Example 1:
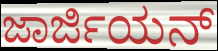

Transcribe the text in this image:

ಜಾರ್ಜಿಯನ್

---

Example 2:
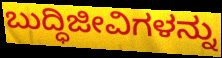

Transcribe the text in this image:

ಬುದ್ಧಿಜೀವಿಗಳನ್ನು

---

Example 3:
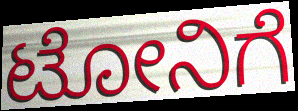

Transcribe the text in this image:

ಟೋನಿಗೆ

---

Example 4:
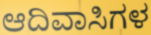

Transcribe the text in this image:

ಆದಿವಾಸಿಗಳ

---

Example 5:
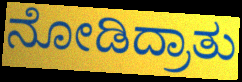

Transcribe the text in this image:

ನೋಡಿದ್ರಾತು